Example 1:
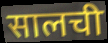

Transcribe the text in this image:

सालची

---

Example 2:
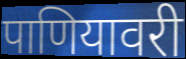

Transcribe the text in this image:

पाणियावरी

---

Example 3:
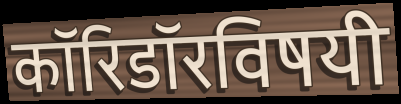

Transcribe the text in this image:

कॉरिडॉरविषयी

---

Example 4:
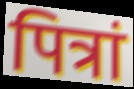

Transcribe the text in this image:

पित्रां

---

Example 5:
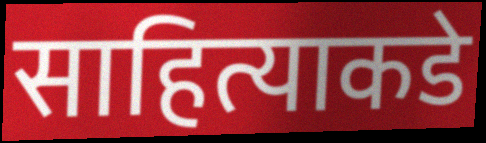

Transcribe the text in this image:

साहित्याकडे